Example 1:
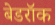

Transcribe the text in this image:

बेडरॉक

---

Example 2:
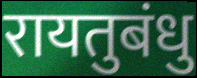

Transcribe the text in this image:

रायतुबंधु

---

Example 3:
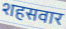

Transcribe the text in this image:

शहसवार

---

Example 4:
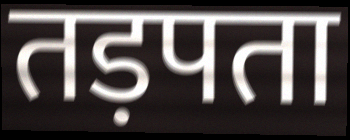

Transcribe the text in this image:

तड़पता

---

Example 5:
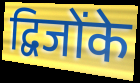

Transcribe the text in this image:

द्विजोंके